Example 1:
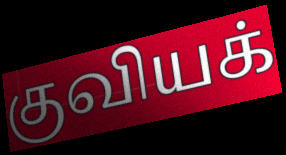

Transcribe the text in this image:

குவியக்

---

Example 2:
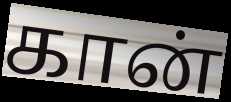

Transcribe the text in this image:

கான்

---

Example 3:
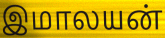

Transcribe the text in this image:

இமாலயன்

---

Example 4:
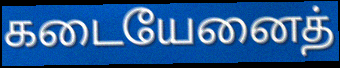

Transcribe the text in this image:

கடையேனைத்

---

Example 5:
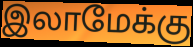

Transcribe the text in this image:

இலாமேக்கு